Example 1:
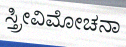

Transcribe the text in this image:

ಸ್ತ್ರೀವಿಮೋಚನಾ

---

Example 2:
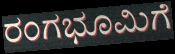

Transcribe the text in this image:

ರಂಗಭೂಮಿಗೆ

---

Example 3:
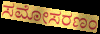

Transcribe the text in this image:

ಸಮೋಸರಣಂ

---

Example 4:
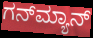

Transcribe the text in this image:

ಗನ್‌ಮ್ಯಾನ್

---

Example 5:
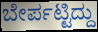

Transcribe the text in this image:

ಬೇರ್ಪಟ್ಟಿದ್ದು